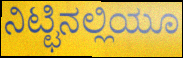
ನಿಟ್ಟಿನಲ್ಲಿಯೂ